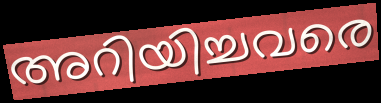
അറിയിച്ചവരെ